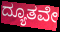
ದ್ಯೂತವೇ